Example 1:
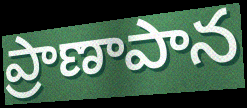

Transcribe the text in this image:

ప్రాణాపాన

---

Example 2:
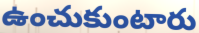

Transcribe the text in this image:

ఉంచుకుంటారు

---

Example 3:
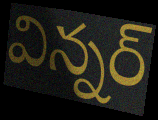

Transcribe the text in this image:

విన్నర్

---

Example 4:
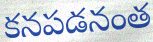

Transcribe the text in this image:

కనపడనంత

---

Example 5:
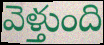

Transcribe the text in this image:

వెళ్తుంది